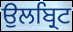
ਉਲਬ੍ਰਿਟ